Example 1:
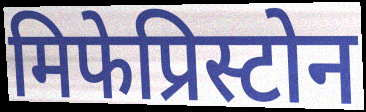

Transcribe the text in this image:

मिफेप्रिस्टोन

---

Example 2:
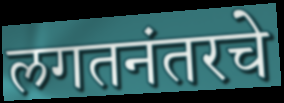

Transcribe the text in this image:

लगतनंतरचे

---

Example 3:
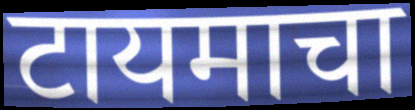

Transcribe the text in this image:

टायमाचा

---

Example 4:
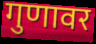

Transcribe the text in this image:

गुणावर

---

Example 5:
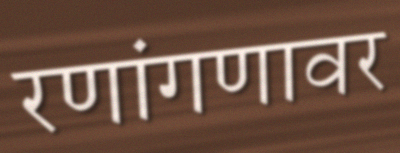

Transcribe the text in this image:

रणांगणावर